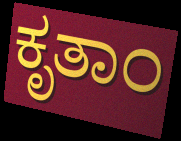
ಕೃತಾಂ